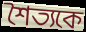
শৈত্যকে